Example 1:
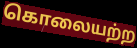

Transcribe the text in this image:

கொலையற்ற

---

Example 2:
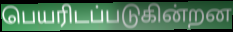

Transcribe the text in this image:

பெயரிடப்படுகின்றன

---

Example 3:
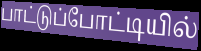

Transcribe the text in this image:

பாட்டுப்போட்டியில்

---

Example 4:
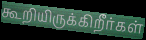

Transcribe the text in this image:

கூறியிருக்கிறீர்கள்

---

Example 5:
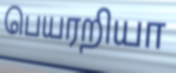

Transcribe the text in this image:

பெயரறியா